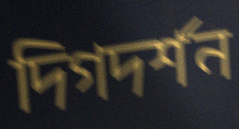
দিগদর্শন